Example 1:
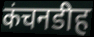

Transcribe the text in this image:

कंचनडीह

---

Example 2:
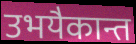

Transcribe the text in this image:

उभयैकान्त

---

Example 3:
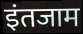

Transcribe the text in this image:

इंतजाम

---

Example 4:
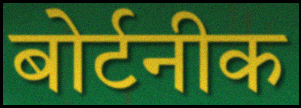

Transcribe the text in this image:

बोर्टनीक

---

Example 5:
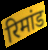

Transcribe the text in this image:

रिमांड